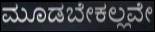
ಮೂಡಬೇಕಲ್ಲವೇ